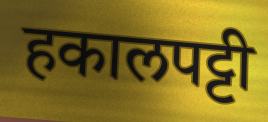
हकालपट्टी